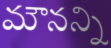
మౌనన్ని